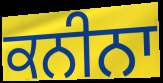
ਕਨੀਨਾ